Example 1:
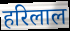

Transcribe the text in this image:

हरिलाल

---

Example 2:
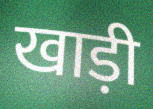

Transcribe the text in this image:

खाड़ी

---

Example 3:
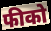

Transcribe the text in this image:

फीको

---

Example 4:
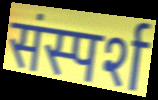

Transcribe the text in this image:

संस्पर्श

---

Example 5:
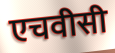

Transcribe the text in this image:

एचवीसी